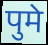
पुमे